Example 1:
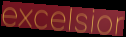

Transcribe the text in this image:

excelsior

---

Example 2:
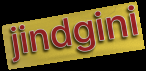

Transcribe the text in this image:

jindgini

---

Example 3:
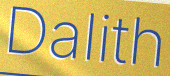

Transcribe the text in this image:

Dalith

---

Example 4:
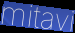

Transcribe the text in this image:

mitavi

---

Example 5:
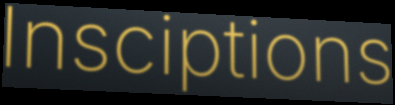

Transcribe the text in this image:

Insciptions